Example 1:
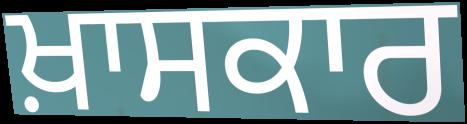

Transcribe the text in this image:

ਖ਼ਾਸਕਾਰ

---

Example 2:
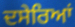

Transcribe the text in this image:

ਦਸੇਰਿਆਂ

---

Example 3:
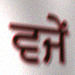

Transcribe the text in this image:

ਵਜੇਂ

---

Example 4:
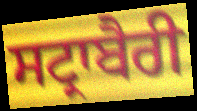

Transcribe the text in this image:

ਸਟ੍ਰਾਬੈਰੀ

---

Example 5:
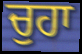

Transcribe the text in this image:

ਚੁਹਾ